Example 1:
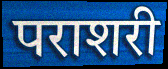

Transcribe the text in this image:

पराशरी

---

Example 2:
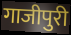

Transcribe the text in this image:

गाजीपुरी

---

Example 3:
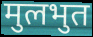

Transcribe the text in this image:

मुलभुत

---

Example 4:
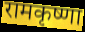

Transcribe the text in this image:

रामकृष्णा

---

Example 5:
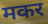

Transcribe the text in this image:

मकर